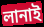
লানাই